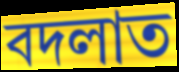
বদলাত